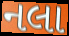
નલા